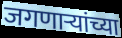
जगणाऱ्यांच्या